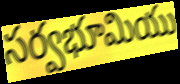
సర్వభూమియు